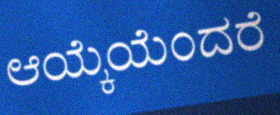
ಆಯ್ಕೆಯೆಂದರೆ